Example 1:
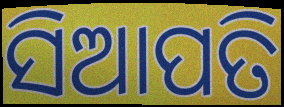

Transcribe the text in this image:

ସିଆପତି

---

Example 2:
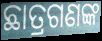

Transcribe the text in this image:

ଛାତ୍ରଗଣଙ୍କ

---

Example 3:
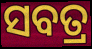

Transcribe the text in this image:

ସବତ୍ର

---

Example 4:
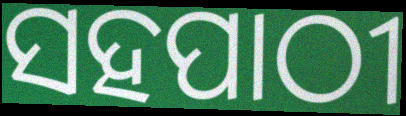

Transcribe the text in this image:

ସହପାଠୀ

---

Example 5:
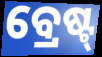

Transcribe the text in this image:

ବ୍ରେଷ୍ଟ୍